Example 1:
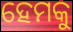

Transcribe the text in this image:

ହେମକୁ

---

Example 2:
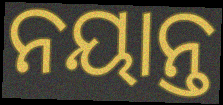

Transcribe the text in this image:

ନୟାନ୍ତ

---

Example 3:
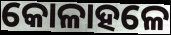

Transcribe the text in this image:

କୋଳାହଳେ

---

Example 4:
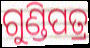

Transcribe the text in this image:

ଗୁଣ୍ଡିପତ୍ର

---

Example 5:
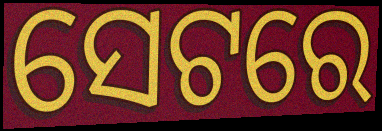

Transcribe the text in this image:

ସେଟରେ